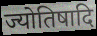
ज्योतिषादि